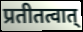
प्रतीतत्वात्